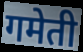
गमेती